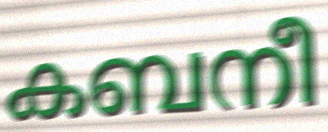
കബനീ